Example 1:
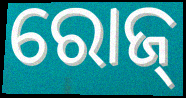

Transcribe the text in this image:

ରୋଜ୍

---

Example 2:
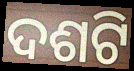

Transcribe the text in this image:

ଦଶଟି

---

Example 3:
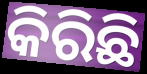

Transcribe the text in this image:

କିରିଛି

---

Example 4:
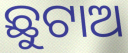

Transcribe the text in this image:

ଛୁଟାଅ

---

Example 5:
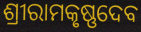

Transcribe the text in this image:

ଶ୍ରୀରାମକୃଷ୍ଣଦେବ